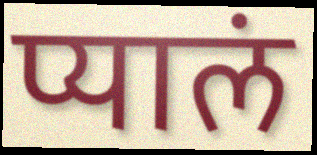
प्यालं